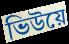
ভিউয়ে